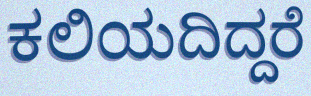
ಕಲಿಯದಿದ್ದರೆ